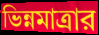
ভিন্নমাত্রার